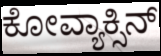
ಕೋವ್ಯಾಕ್ಸಿನ್